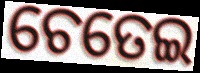
ଚେତେଇ